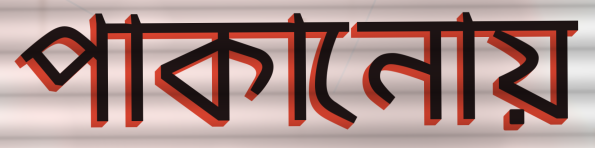
পাকানোয়